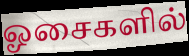
ஓசைகளில்